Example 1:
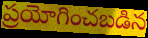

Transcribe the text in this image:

ప్రయోగించబడిన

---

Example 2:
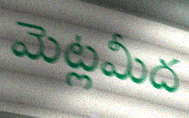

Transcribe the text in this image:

మెట్లమీద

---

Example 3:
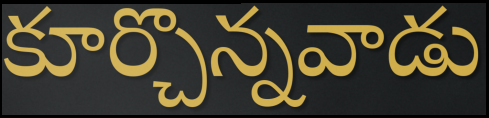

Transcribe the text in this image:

కూర్చొన్నవాడు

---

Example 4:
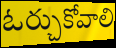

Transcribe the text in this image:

ఓర్చుకోవాలి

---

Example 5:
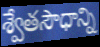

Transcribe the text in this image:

శ్వేతసౌధాన్ని